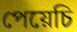
পেয়েচি